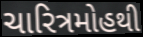
ચારિત્રમોહથી